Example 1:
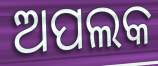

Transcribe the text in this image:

ଅପଲକ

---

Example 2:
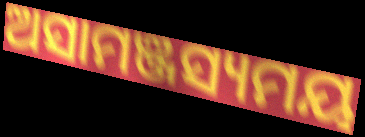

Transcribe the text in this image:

ଅସାମଞ୍ଜସ୍ୟମୟ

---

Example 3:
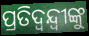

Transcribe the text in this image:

ପ୍ରତିଦ୍ବନ୍ଦ୍ବୀଙ୍କୁ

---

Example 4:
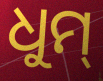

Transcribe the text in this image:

ଧୁମ୍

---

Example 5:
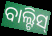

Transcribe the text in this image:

ବାଲ୍ଟିସ୍